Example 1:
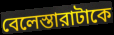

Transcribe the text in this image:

বেলেস্তারাটাকে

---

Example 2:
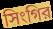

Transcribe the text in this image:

সিংগির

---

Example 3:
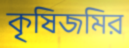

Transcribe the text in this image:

কৃষিজমির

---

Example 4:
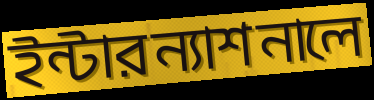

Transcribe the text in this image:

ইন্টারন্যাশনালে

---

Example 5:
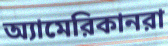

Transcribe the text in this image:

অ্যামেরিকানরা